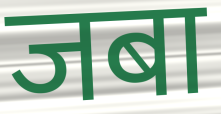
जबा